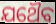
ଯଥୈବ